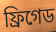
ফ্রিগেড